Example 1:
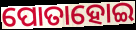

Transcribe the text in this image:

ପୋତାହୋଇ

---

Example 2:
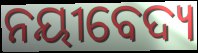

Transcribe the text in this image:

ନୟୀବେଦ୍ୟ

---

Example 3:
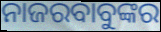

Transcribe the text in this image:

ନାଜରବାବୁଙ୍କର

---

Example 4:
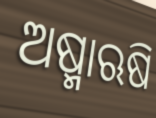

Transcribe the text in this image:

ଅଷ୍ମାଋଷି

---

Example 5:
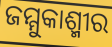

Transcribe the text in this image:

ଜମ୍ମୁକାଶ୍ମୀର